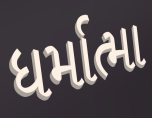
ધર્માત્મા